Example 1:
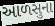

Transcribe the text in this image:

આળસુના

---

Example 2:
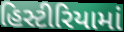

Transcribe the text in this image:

હિસ્ટીરિયામાં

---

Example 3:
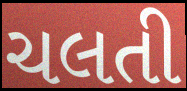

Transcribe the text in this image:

ચલતી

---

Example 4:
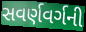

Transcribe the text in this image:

સવર્ણવર્ગની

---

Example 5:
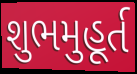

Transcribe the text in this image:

શુભમુહૂર્ત